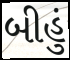
બીહું